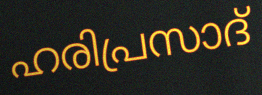
ഹരിപ്രസാദ്